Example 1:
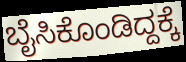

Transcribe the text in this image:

ಬೈಸಿಕೊಂಡಿದ್ದಕ್ಕೆ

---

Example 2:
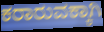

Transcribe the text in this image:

ಕರಾರುವಕ್ಕಾಗಿ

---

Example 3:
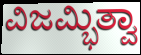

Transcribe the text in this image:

ವಿಜಮ್ಭಿತ್ವಾ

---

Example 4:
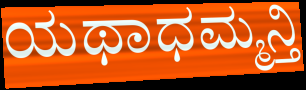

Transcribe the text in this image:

ಯಥಾಧಮ್ಮನ್ತಿ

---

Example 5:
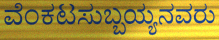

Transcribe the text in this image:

ವೆಂಕಟಸುಬ್ಬಯ್ಯನವರು